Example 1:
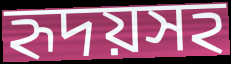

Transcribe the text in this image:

হৃদয়সহ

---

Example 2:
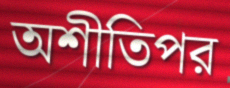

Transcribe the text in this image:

অশীতিপর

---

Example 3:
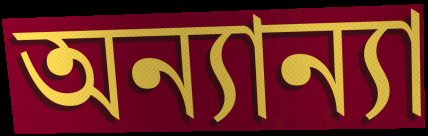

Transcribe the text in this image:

অন্যান্যা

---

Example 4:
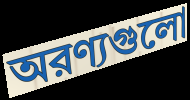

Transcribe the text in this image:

অরণ্যগুলো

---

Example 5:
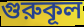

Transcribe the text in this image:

গুরুকূল